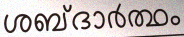
ശബ്ദാർത്ഥം